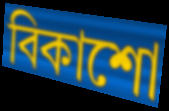
বিকাশো